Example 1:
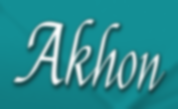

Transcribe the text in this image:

Akhon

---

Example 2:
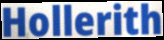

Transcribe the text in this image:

Hollerith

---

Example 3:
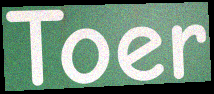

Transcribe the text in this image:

Toer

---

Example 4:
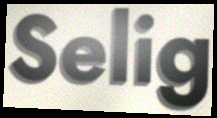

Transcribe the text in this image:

Selig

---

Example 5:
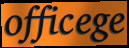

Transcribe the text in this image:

officege